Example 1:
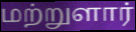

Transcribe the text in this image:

மற்றுளார்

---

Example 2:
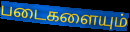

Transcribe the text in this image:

படைகளையும்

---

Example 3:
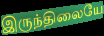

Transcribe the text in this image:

இருந்திலையே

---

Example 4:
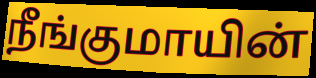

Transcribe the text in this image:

நீங்குமாயின்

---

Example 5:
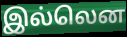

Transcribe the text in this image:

இல்லென